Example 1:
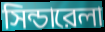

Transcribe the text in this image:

সিন্ডারেলা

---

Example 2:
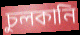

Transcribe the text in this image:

চুলকানি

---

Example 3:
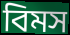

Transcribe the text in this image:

বিমস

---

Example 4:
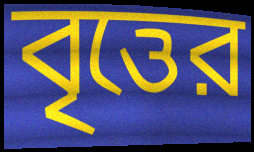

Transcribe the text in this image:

বৃত্তের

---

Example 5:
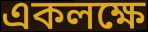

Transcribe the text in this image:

একলক্ষে